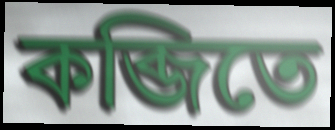
কব্জিতে